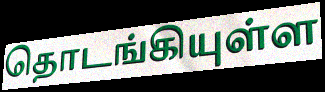
தொடங்கியுள்ள